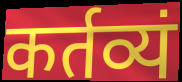
कर्तव्यं